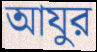
আযুর